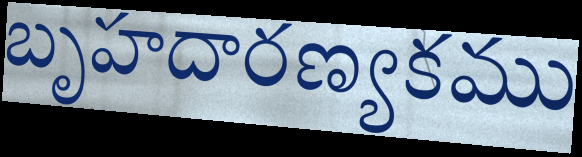
బృహదారణ్యకము